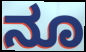
ನೂ